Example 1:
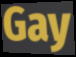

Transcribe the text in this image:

Gay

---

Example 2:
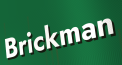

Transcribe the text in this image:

Brickman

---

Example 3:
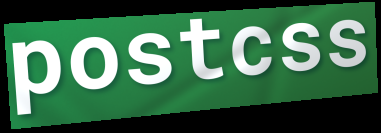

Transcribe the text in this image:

postcss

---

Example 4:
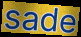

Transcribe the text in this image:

sade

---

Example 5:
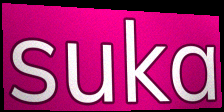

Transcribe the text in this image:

suka